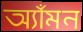
অ্যাঁমন